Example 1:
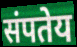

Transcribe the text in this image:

संपतेय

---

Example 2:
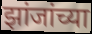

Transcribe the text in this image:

झांजांच्या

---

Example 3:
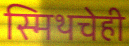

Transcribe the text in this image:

स्मिथचेही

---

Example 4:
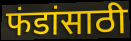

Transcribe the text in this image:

फंडांसाठी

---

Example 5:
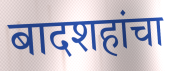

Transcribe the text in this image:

बादशहांचा